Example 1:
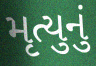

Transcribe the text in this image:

મૃત્યુનું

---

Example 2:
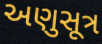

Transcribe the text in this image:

અણુસૂત્ર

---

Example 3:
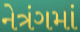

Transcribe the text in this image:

નેત્રંગમાં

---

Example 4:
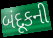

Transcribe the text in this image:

બંદૂકની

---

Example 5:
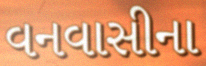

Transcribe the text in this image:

વનવાસીના